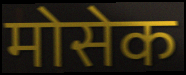
मोसेक